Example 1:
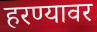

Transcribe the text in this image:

हरण्यावर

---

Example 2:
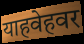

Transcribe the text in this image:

याहवेहवर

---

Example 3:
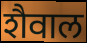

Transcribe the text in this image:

शैवाल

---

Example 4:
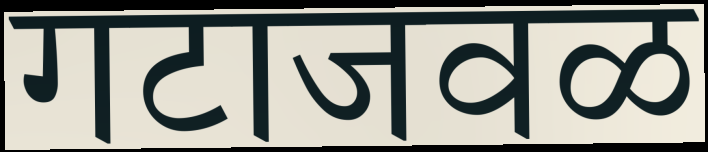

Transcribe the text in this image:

गटाजवळ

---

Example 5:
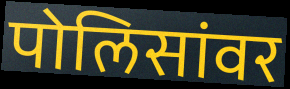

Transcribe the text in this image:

पोलिसांवर